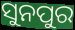
ସୁନପୁର